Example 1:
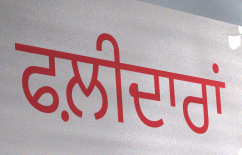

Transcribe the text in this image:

ਫਲ਼ੀਦਾਰਾਂ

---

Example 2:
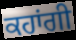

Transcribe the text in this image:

ਕਹਾਂਗੀ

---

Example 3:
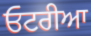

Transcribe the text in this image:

ਓਟਰੀਆ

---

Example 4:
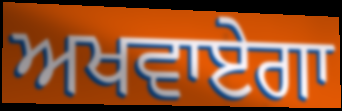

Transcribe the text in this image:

ਅਖਵਾਏਗਾ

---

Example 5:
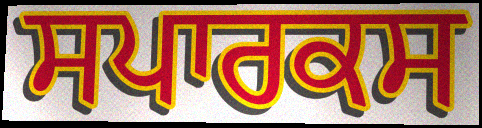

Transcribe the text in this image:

ਸਪਾਰਕਸ